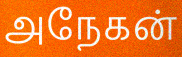
அநேகன்